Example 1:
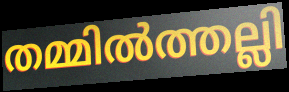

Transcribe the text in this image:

തമ്മിൽത്തല്ലി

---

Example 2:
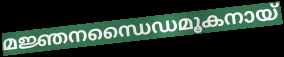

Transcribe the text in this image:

മജ്ഞനന്ധൈഡമൂകനായ്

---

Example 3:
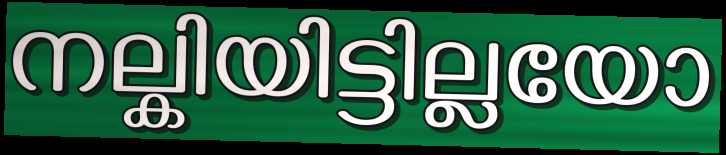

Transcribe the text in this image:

നല്കിയിട്ടില്ലയോ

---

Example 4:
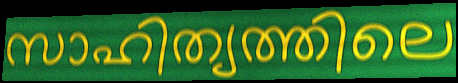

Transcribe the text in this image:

സാഹിത്യത്തിലെ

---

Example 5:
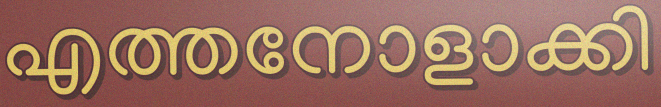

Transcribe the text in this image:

എത്തനോളാക്കി